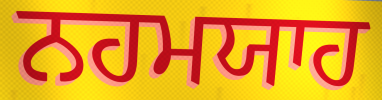
ਨਹਮਯਾਹ